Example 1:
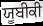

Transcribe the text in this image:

ਯੂਬੀਕੀ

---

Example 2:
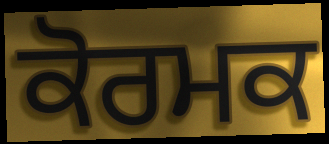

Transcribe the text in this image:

ਕੋਰਮਕ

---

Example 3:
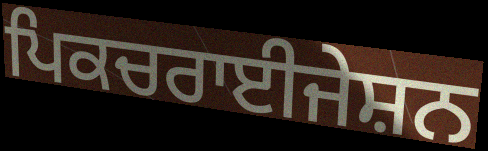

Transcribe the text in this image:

ਪਿਕਚਰਾਈਜੇਸ਼ਨ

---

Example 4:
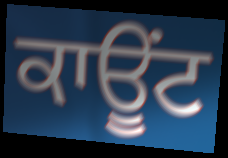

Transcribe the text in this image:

ਕਾਊਂਟ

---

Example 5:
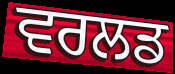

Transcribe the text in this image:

ਵਰਲਡ